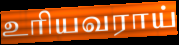
உரியவராய்